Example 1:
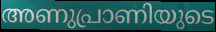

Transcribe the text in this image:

അണുപ്രാണിയുടെ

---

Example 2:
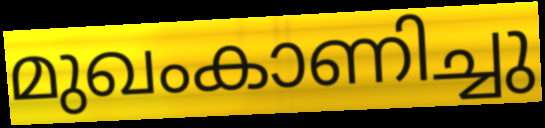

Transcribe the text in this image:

മുഖംകാണിച്ചു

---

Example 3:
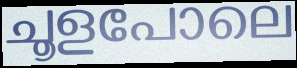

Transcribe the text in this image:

ചൂളപോലെ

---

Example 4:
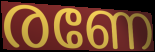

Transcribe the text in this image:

രണേ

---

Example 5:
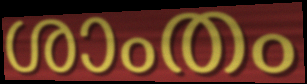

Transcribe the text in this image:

ശാംതം